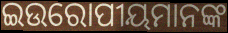
ଇଉରୋପୀୟମାନଙ୍କ